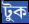
টুক